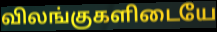
விலங்குகளிடையே